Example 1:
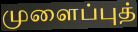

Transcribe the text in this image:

முளைப்புத்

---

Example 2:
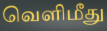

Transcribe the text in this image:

வெளிமீது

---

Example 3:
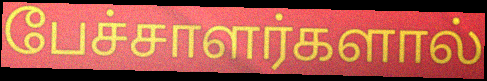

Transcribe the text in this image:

பேச்சாளர்களால்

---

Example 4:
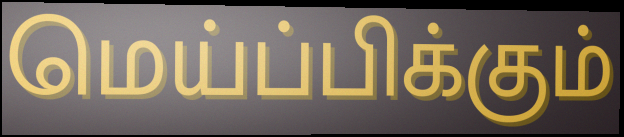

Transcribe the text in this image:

மெய்ப்பிக்கும்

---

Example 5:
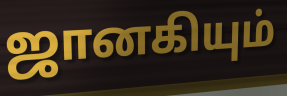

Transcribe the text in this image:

ஜானகியும்